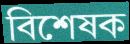
বিশেষক